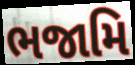
ભજામિ